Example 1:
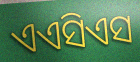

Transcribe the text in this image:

ଏଏସିଏସ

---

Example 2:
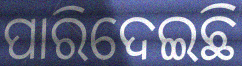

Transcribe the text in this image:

ପାରିଦେଇଛି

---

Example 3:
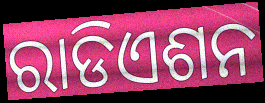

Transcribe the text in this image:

ରାଡିଏଶନ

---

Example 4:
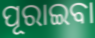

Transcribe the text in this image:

ପୂରାଇବା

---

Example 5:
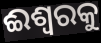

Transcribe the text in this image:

ଈଶ୍ୱରକୁ